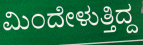
ಮಿಂದೇಳುತ್ತಿದ್ದ